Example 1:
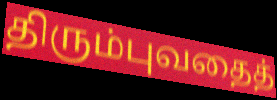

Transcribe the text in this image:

திரும்புவதைத்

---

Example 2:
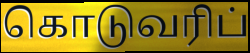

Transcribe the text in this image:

கொடுவரிப்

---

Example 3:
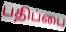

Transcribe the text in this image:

பதிப்பை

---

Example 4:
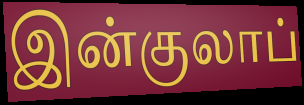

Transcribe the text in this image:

இன்குலாப்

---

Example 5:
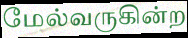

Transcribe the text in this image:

மேல்வருகின்ற